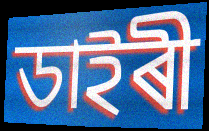
ডাইৰী